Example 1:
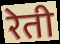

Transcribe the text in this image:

रेती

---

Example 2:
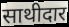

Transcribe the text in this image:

साथीदार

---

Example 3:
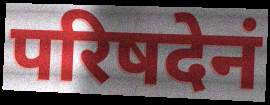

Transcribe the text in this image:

परिषदेनं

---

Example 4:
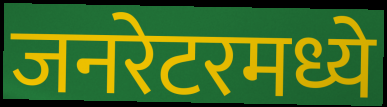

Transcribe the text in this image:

जनरेटरमध्ये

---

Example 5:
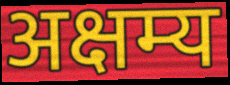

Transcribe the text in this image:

अक्षम्य